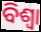
ବିଶ୍ବା